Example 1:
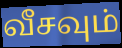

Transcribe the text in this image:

வீசவும்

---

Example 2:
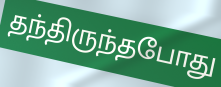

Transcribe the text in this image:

தந்திருந்தபோது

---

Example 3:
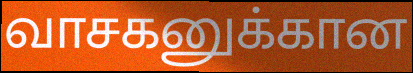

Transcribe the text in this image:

வாசகனுக்கான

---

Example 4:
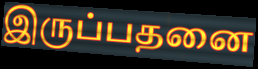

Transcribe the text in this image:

இருப்பதனை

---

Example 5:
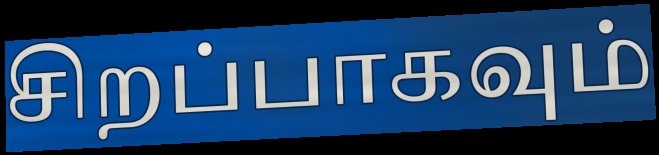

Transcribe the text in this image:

சிறப்பாகவும்